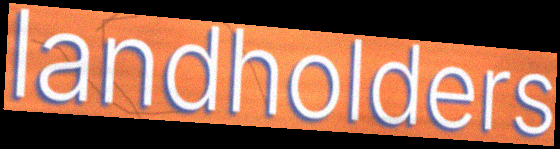
landholders